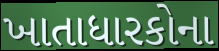
ખાતાધારકોના